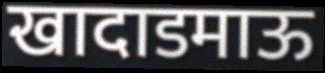
खादाडमाऊ